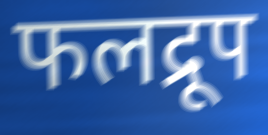
फलद्रूप